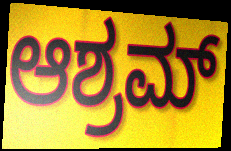
ಆಶ್ರಮ್